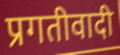
प्रगतीवादी